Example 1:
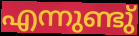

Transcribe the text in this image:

എന്നുണ്ടു്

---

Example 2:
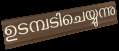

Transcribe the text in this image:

ഉടമ്പടിചെയ്യുന്നു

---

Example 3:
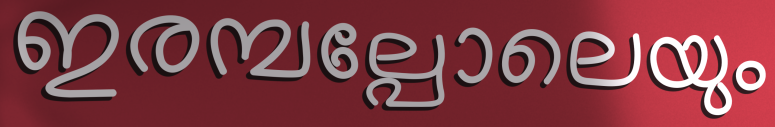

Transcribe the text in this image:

ഇരമ്പല്പോലെയും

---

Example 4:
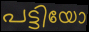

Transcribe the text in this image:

പട്ടിയോ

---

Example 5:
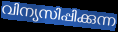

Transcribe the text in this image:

വിന്യസിപ്പിക്കുന്ന